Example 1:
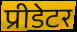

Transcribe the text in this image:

प्रीडेटर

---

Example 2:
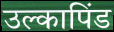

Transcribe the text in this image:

उल्कापिंड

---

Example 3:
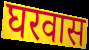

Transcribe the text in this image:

घरवास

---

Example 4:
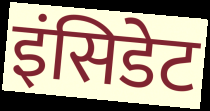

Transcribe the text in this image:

इंसिडेट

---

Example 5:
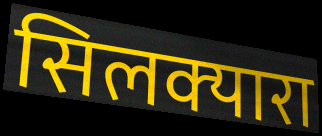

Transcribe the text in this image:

सिलक्यारा